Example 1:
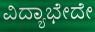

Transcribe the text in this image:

ವಿದ್ಯಾಭೇದೇ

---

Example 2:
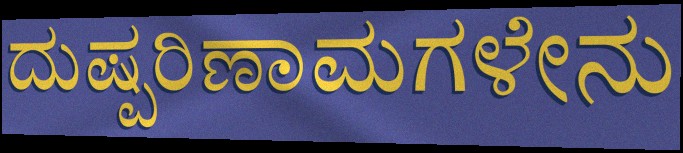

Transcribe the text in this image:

ದುಷ್ಪರಿಣಾಮಗಳೇನು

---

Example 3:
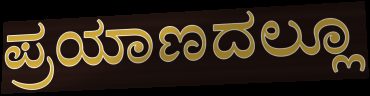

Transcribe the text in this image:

ಪ್ರಯಾಣದಲ್ಲೂ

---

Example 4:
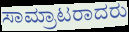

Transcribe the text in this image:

ಸಾಮ್ರಾಟರಾದರು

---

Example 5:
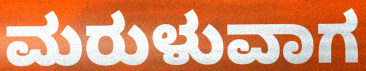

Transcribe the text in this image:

ಮರುಳುವಾಗ